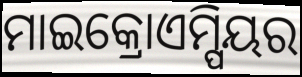
ମାଇକ୍ରୋଏମ୍ପିୟର